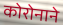
कोरोनाने